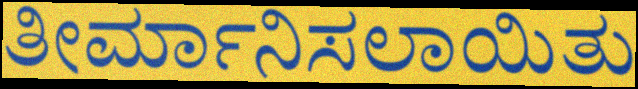
ತೀರ್ಮಾನಿಸಲಾಯಿತು